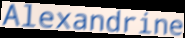
Alexandrine